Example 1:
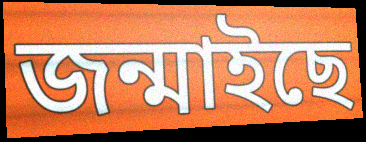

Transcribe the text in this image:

জন্মাইছে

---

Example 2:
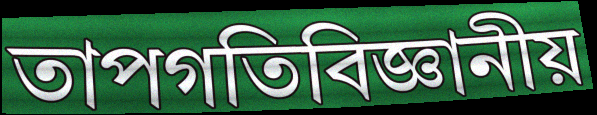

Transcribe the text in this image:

তাপগতিবিজ্ঞানীয়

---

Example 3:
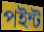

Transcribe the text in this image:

পইন্ট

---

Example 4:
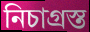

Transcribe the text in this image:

নিচাগ্ৰস্ত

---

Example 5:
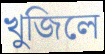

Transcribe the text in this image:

খুজিলে